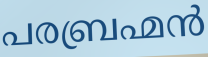
പരബ്രഹ്മൻ